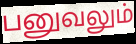
பனுவலும்